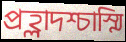
প্রহ্লাদশ্চাস্মি